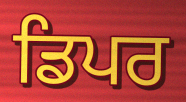
ਡਿਪਰ